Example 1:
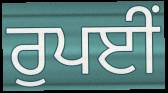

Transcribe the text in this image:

ਰੁਪਈਂ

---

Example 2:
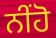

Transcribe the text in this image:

ਨੀਂਹੋ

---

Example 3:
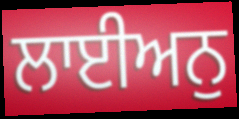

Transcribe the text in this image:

ਲਾਈਅਨੁ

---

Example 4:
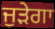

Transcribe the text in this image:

ਜੁੜੇਗਾ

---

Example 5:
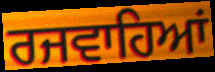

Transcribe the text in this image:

ਰਜਵਾਹਿਆਂ